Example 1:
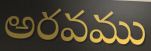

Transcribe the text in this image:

అరవము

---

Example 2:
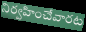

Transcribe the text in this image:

నిర్వహించేవారట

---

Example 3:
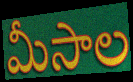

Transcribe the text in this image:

మీసాల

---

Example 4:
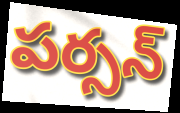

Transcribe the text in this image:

పర్సన్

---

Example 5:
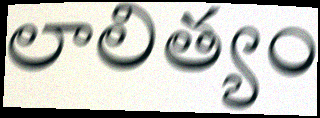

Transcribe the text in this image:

లాలిత్యం